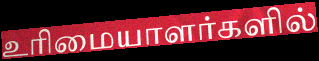
உரிமையாளர்களில்